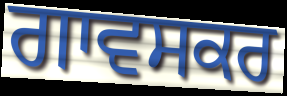
ਗਾਵਸਕਰ